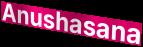
Anushasana